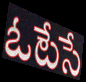
ఓటేసే